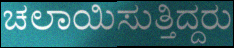
ಚಲಾಯಿಸುತ್ತಿದ್ದರು